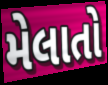
મેલાતો